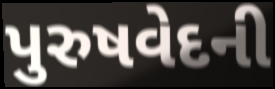
પુરુષવેદની